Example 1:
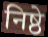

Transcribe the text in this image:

निष्ठे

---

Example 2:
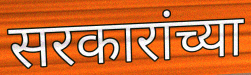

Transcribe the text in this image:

सरकारांच्या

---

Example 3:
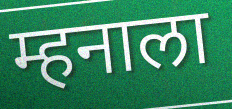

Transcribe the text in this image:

म्हनाला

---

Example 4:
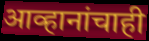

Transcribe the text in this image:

आव्हानांचाही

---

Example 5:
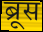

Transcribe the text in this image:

ब्रूस